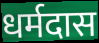
धर्मदास